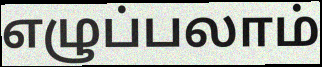
எழுப்பலாம்